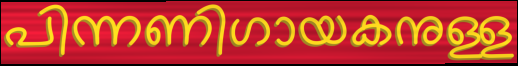
പിന്നണിഗായകനുള്ള